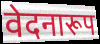
वेदनारूप